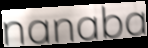
nanaba